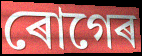
ৰোগেৰ